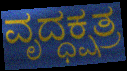
ವೃದ್ಧಕ್ಷತ್ರ